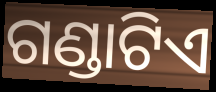
ଗଣ୍ଡାଟିଏ